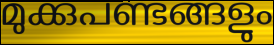
മുക്കുപണ്ടങ്ങളും